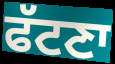
ਫੱਟਣਾ